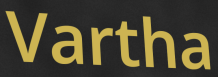
Vartha